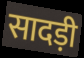
सादड़ी